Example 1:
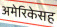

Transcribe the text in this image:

अमेरिकेसह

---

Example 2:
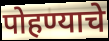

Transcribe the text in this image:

पोहण्याचे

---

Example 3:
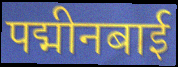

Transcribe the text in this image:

पद्मीनबाई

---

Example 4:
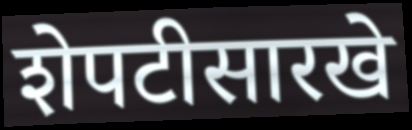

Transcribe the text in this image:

शेपटीसारखे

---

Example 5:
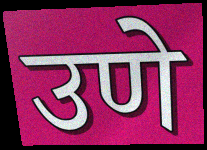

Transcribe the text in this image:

उणे